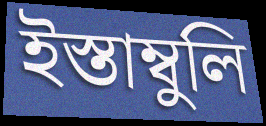
ইস্তাম্বুলি